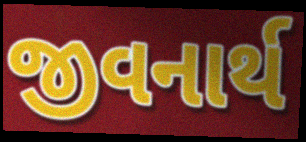
જીવનાર્થ